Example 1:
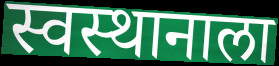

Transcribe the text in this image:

स्वस्थानाला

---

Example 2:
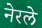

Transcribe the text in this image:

नेरले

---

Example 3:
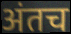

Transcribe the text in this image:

अंतच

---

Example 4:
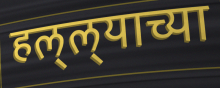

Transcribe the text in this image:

हल्ल्याच्या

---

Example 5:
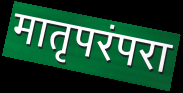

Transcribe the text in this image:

मातृपरंपरा